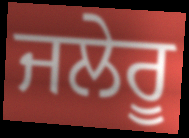
ਜਲੇਰੂ